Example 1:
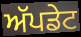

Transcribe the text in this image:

ਅੱਪਡੇਟ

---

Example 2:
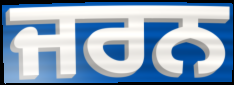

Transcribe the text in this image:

ਜਰਨ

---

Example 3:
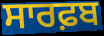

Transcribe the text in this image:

ਸਾਰਫ਼ਬ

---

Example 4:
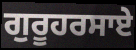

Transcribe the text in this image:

ਗੁਰੂਹਰਸਾਏ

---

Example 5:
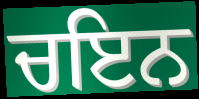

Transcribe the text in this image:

ਚਇਨ